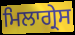
ਮਿਲਾਗ੍ਰੇਸ